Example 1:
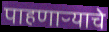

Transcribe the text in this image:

पाहणाऱ्याचे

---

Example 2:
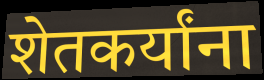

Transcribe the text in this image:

शेतकर्यांना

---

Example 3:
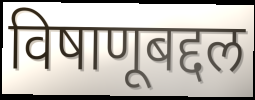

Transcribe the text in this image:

विषाणूबद्दल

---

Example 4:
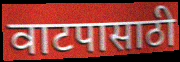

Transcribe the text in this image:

वाटपासाठी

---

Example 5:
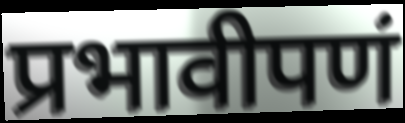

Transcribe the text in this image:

प्रभावीपणं